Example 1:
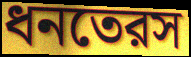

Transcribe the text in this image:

ধনতেরস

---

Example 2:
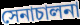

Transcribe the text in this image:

সেনাচালনা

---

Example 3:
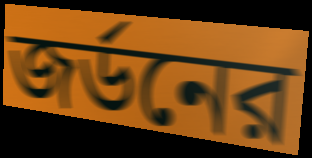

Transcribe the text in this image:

জর্ডনের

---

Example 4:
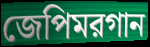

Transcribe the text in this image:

জেপিমরগান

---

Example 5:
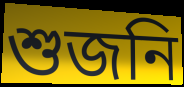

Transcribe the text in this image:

শুজনি